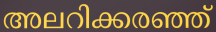
അലറിക്കരഞ്ഞ്